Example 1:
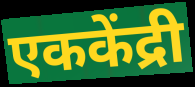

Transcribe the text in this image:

एककेंद्री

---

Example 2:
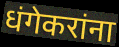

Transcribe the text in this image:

धंगेकरांना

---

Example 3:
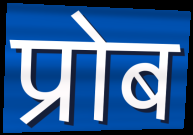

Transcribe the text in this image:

प्रोब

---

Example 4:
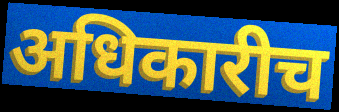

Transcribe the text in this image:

अधिकारीच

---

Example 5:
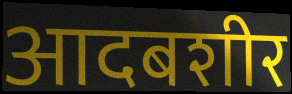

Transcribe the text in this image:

आदबशीर